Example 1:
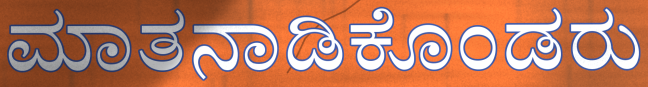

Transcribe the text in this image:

ಮಾತನಾಡಿಕೊಂಡರು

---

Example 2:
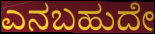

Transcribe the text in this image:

ಎನಬಹುದೇ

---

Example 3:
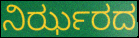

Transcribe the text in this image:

ನಿರ್ಝರದ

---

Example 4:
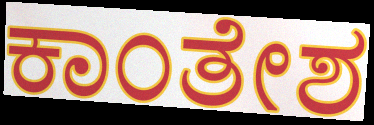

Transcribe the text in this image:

ಕಾಂತೇಶ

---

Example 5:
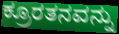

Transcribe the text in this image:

ಕ್ರೂರತನವನ್ನು